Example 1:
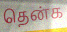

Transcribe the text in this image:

தென்க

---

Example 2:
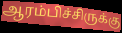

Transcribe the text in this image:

ஆரம்பிச்சிருக்கு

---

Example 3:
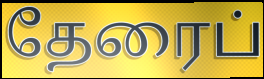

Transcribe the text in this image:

தேரைப்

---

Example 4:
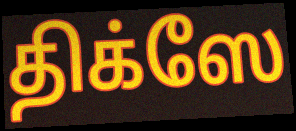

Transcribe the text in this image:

திக்ஸே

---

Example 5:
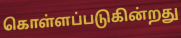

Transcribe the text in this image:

கொள்ளப்படுகின்றது